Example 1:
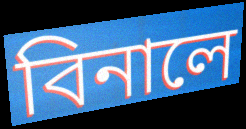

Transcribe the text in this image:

বিনালে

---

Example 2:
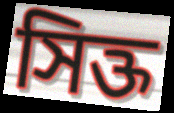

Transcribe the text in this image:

সিক্ত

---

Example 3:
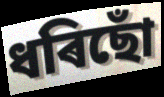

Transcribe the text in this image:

ধৰিছোঁ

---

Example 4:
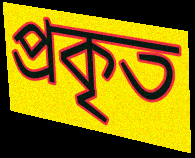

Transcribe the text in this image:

প্ৰকৃত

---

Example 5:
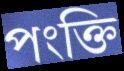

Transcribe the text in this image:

পংক্তি